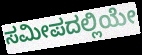
ಸಮೀಪದಲ್ಲಿಯೇ